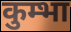
कुम्भा